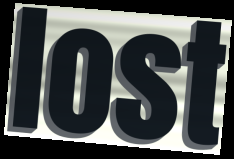
lost